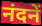
नंदनें